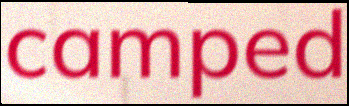
camped